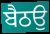
ਬੈਠਉ